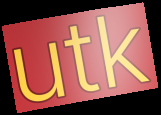
utk